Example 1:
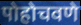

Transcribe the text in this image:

पोहोचवणे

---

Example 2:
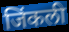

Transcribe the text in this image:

जिंकली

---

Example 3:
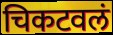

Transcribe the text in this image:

चिकटवलं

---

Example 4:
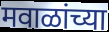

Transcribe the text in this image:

मवाळांच्या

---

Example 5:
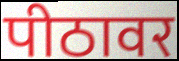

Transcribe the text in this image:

पीठावर